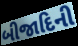
બીજાદિની